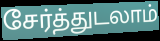
சேர்த்துடலாம்